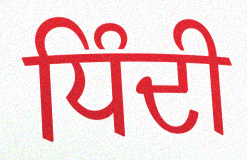
ਧਿੰਦੀ